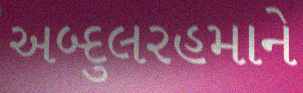
અબ્દુલરહમાને